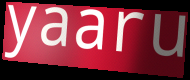
yaaru